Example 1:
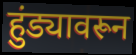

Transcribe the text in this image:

हुंड्यावरून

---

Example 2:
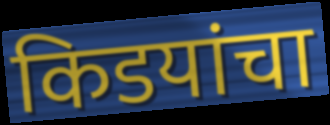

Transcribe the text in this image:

किडयांचा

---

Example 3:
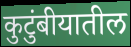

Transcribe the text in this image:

कुटुंबीयातील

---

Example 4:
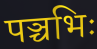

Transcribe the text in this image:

पञ्चभिः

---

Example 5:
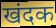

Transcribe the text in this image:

खंदक